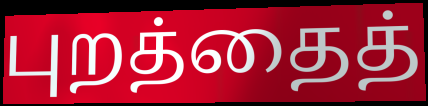
புறத்தைத்